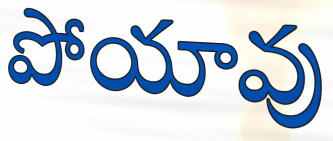
పోయావు